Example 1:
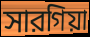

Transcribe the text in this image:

সারগিয়া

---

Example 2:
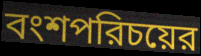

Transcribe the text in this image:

বংশপরিচয়ের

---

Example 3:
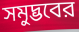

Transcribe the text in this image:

সমুদ্ভবের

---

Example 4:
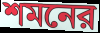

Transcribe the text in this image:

শমনের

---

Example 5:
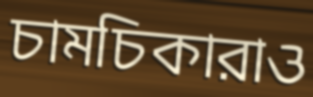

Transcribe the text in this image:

চামচিকারাও